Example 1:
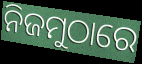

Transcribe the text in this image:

ନିଜମୁଠାରେ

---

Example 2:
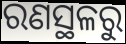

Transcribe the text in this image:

ରଣସ୍ଥଳରୁ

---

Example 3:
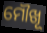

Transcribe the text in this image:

ମୌଖୂ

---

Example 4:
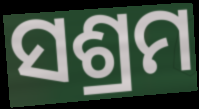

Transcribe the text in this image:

ସଶ୍ରମ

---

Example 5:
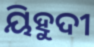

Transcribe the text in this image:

ୟିହୁଦୀ